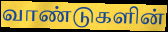
வாண்டுகளின்